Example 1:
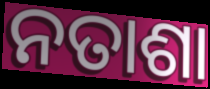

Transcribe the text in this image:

ନତାଶା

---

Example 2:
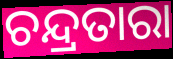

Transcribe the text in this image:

ଚନ୍ଦ୍ରତାରା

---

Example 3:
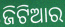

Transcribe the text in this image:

ଜିଟିଆର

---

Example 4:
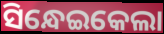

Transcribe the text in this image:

ସିନ୍ଧେଇକେଲା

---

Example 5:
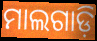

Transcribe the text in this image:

ମାଲଗାଡ଼ି